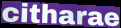
citharae